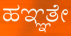
ಹಞ್ಞತೇ